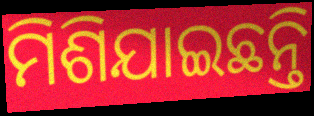
ମିଶିଯାଇଛନ୍ତି